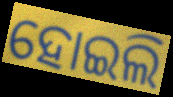
ହୋଇଲି